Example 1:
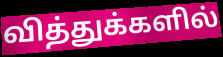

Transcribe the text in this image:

வித்துக்களில்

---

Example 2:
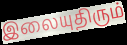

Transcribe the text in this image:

இலையுதிரும்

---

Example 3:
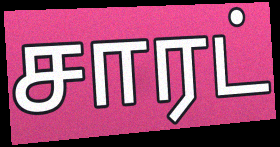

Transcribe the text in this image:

சாரட்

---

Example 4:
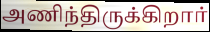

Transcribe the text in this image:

அணிந்திருக்கிறார்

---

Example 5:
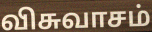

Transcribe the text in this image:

விசுவாசம்